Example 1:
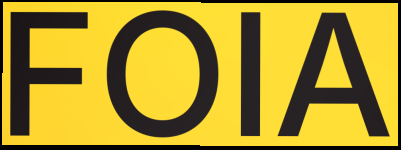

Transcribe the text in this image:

FOIA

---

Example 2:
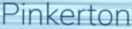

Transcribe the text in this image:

Pinkerton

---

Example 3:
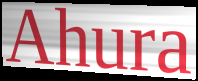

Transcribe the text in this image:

Ahura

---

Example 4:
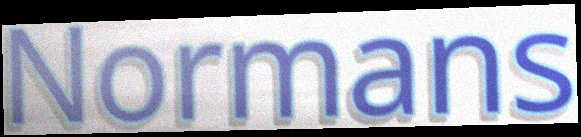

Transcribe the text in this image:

Normans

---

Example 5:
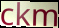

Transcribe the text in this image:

ckm